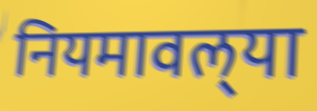
नियमावल्या